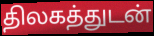
திலகத்துடன்